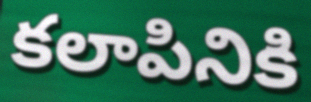
కలాపినికి